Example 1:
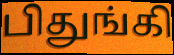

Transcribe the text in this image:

பிதுங்கி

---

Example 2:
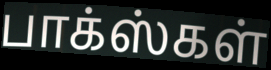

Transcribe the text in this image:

பாக்ஸ்கள்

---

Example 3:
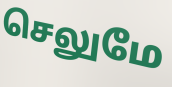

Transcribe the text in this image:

செலுமே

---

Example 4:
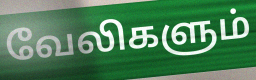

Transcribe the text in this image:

வேலிகளும்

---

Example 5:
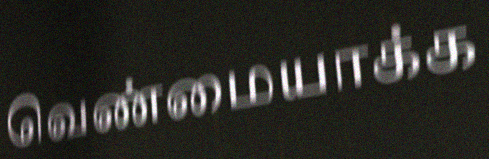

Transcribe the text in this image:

வெண்மையாக்க